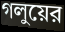
গলুয়ের